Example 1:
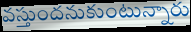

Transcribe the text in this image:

వస్తుందనుకుంటున్నారు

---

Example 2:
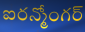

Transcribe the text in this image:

ఐరన్మోంగర్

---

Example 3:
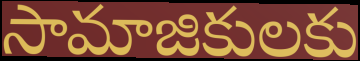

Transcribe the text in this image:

సామాజికులకు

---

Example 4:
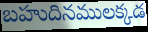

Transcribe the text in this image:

బహుదినములక్కడ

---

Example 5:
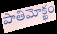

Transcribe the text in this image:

పాతిమోక్ఖం